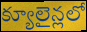
క్యూలైన్లలో